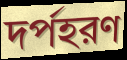
দর্পহরণ